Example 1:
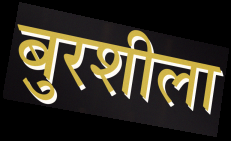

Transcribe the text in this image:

बुरशीला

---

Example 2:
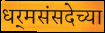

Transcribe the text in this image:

धर्मसंसदेच्या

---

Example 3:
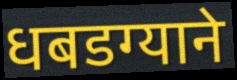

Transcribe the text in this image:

धबडग्याने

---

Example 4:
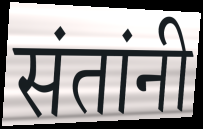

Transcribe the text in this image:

संतांनी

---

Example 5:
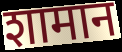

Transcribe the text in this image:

शामान